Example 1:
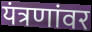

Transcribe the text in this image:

यंत्रणांवर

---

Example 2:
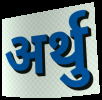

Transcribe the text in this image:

अर्थु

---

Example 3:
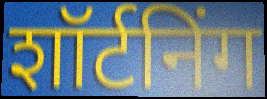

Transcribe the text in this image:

शॉर्टनिंग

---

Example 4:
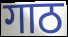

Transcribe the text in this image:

गाठ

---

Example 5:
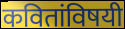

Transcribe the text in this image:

कवितांविषयी